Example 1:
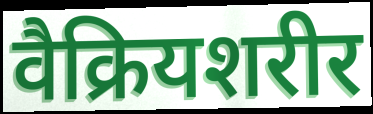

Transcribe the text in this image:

वैक्रियशरीर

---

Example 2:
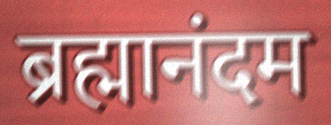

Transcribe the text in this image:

ब्रह्मानंदम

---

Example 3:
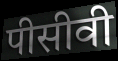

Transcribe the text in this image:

पीसीवी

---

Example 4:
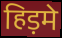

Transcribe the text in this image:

हिड़मे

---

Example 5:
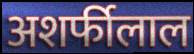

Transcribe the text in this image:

अशर्फीलाल